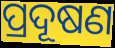
ପ୍ରଦୂଷଣ